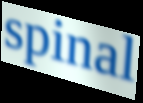
spinal